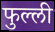
फुल्ली